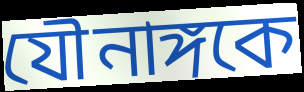
যৌনাঙ্গকে